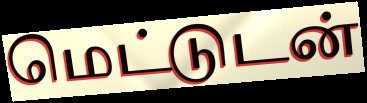
மெட்டுடன்